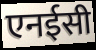
एनईसी